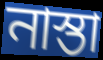
নাস্তা